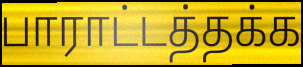
பாராட்டத்தக்க